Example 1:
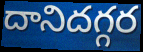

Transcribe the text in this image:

దానిదగ్గర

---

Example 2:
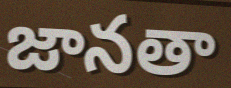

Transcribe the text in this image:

జానతా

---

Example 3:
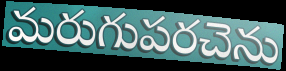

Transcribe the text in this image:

మరుగుపరచెను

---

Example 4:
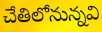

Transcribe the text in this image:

చేతిలోనున్నవి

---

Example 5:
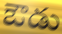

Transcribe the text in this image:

ఔడు